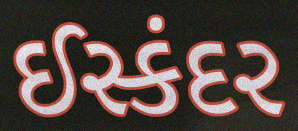
ઈસ્કંદર